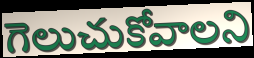
గెలుచుకోవాలని